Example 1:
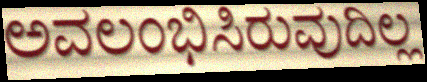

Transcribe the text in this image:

ಅವಲಂಭಿಸಿರುವುದಿಲ್ಲ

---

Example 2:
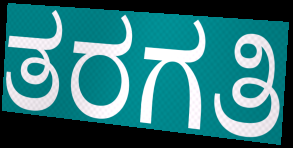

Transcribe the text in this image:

ತರಗತಿ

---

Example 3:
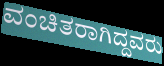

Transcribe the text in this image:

ವಂಚಿತರಾಗಿದ್ದವರು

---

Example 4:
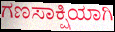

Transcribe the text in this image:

ಗಣಸಾಕ್ಷಿಯಾಗಿ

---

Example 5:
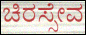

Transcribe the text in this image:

ಚಿರಸ್ಸೇವ